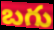
బగు